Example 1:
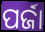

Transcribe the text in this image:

ପର୍ଜା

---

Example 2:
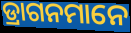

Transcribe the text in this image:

ଡ୍ରାଗନମାନେ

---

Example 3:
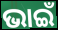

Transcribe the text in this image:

ଭାଇଁ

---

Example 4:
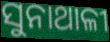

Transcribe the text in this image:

ସୁନାଥାଳୀ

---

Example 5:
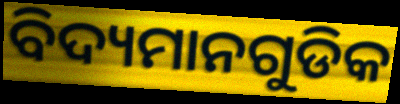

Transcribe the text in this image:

ବିଦ୍ୟମାନଗୁଡିକ